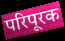
परिपूरक